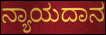
ನ್ಯಾಯದಾನ